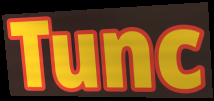
Tunc